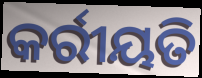
କର୍ରୀୟତି